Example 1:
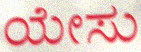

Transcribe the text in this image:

ಯೇಸು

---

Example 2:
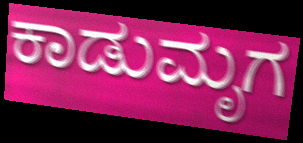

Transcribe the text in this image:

ಕಾಡುಮೃಗ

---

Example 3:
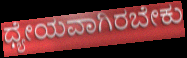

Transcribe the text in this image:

ಧ್ಯೇಯವಾಗಿರಬೇಕು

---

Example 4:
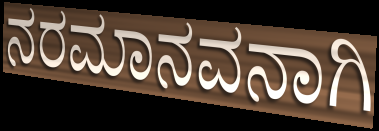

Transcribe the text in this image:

ನರಮಾನವನಾಗಿ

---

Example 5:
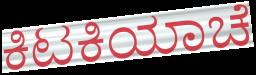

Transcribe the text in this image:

ಕಿಟಕಿಯಾಚೆ